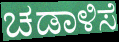
ಚಡಾಳಿಸೆ